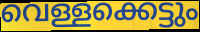
വെള്ളക്കെട്ടും